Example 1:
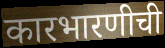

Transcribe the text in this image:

कारभारणीची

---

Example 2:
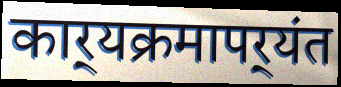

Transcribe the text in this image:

कार्यक्रमापर्यंत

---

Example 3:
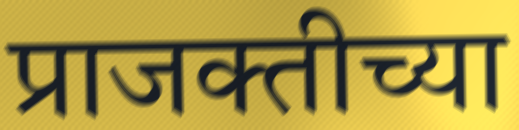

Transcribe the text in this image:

प्राजक्तीच्या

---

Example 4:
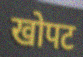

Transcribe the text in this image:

खोपट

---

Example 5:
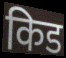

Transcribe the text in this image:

किड